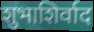
शुभाशिर्वाद